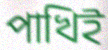
পাখিই